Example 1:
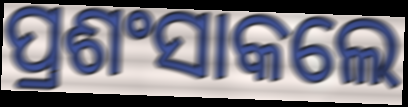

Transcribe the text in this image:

ପ୍ରଶଂସାକଲେ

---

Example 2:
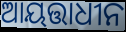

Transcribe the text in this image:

ଆୟତ୍ତାଧୀନ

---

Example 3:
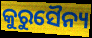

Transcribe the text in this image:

କୁରୁସୈନ୍ୟ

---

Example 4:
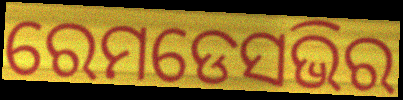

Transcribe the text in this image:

ରେମଡେସଭିର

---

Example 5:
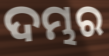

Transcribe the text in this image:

ଦମ୍ଭର